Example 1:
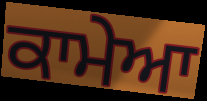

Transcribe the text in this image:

ਕਾਮੇਆ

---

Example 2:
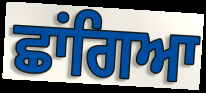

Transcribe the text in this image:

ਛਾਂਗਿਆ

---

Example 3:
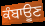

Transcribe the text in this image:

ਕੰਬਾਊਣ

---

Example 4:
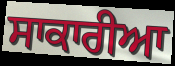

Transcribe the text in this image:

ਸਾਕਾਰੀਆ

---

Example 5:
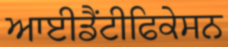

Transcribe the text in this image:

ਆਈਡੈਂਟੀਫਿਕੇਸਨ